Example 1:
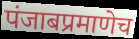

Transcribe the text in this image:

पंजाबप्रमाणेच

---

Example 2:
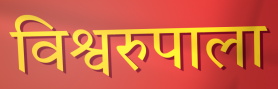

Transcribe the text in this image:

विश्वरुपाला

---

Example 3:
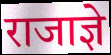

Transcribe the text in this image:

राजाज्ञे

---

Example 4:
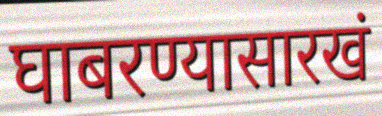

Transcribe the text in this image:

घाबरण्यासारखं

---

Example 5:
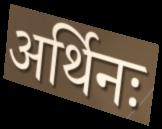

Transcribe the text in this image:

अर्थिनः